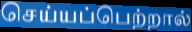
செய்யப்பெற்றால்